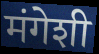
मंगेशी